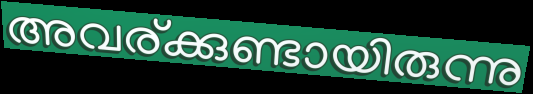
അവര്ക്കുണ്ടായിരുന്നു